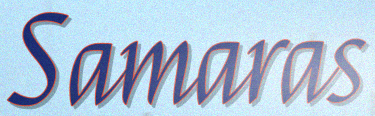
Samaras